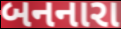
બનનારા